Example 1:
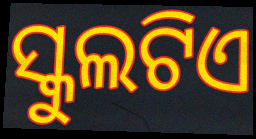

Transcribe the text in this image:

ସ୍କୁଲଟିଏ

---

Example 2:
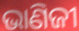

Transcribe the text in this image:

ଭାଣିଜୀ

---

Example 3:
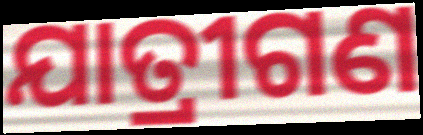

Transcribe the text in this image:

ଯାତ୍ରୀଗଣ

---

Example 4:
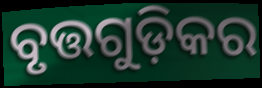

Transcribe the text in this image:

ବୃତ୍ତଗୁଡ଼ିକର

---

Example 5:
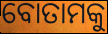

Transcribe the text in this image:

ବୋତାମକୁ